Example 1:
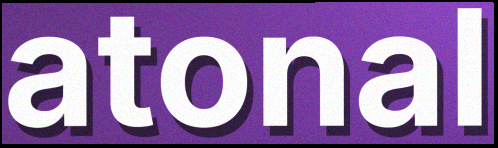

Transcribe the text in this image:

atonal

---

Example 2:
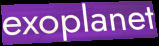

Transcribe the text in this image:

exoplanet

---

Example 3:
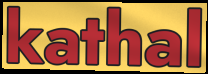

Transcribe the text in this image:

kathal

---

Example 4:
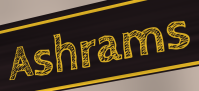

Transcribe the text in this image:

Ashrams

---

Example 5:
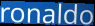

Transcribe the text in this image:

ronaldo